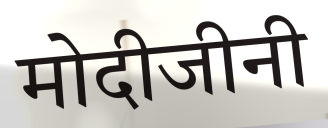
मोदीजीनी